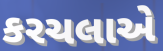
કરચલાએ